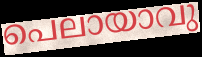
പെലായാവു